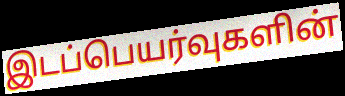
இடப்பெயர்வுகளின்